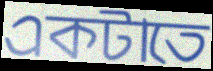
একটাতে